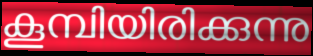
കൂമ്പിയിരിക്കുന്നു